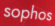
sophos